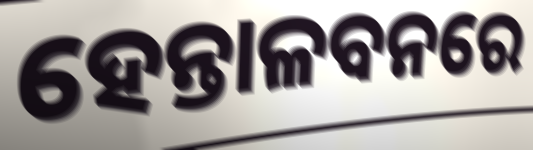
ହେନ୍ତାଳବନରେ